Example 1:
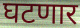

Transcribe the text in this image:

घटणार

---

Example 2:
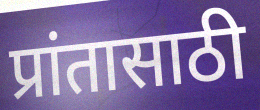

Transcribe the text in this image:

प्रांतासाठी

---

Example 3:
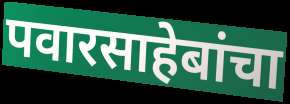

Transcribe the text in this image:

पवारसाहेबांचा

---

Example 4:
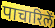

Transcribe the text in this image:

पाचारिलें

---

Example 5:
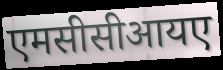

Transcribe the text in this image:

एमसीसीआयए